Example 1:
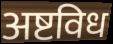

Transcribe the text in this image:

अष्टविध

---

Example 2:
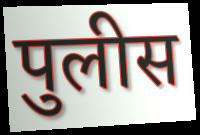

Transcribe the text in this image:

पुलीस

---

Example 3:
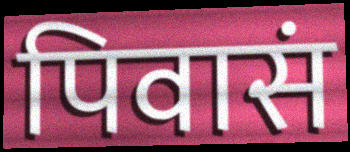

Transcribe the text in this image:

पिवासं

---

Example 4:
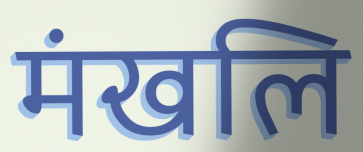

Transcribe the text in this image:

मंखलि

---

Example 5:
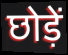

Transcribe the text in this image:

छोड़ें